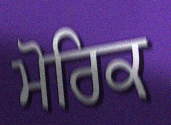
ਮੋਰਿਕ